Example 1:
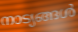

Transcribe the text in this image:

നാട്യങ്ങൾ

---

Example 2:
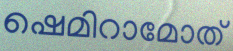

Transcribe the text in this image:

ഷെമിറാമോത്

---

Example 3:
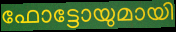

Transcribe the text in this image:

ഫോട്ടോയുമായി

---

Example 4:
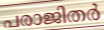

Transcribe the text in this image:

പരാജിതർ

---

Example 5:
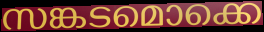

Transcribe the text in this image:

സങ്കടമൊക്കെ